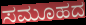
ಸಮೂಹದ